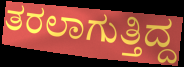
ತರಲಾಗುತ್ತಿದ್ದ